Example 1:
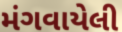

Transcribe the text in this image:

મંગવાયેલી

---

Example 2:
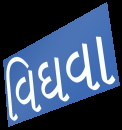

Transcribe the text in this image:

વિઘવા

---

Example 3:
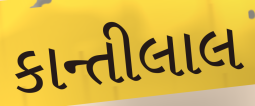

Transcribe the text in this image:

કાન્તીલાલ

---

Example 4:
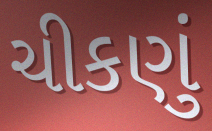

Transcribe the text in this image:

ચીકણું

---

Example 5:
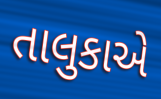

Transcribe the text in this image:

તાલુકાએ